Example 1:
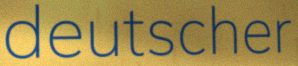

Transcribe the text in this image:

deutscher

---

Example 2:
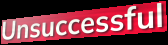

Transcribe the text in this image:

Unsuccessful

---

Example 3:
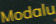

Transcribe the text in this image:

Modalu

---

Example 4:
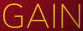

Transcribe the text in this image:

GAIN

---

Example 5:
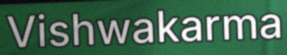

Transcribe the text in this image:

Vishwakarma